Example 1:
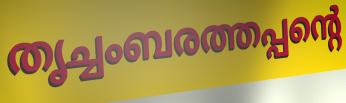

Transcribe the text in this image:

തൃച്ചംബരത്തപ്പന്റെ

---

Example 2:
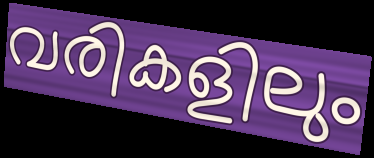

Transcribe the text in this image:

വരികളിലും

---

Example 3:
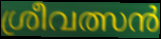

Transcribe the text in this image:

ശ്രീവത്സൻ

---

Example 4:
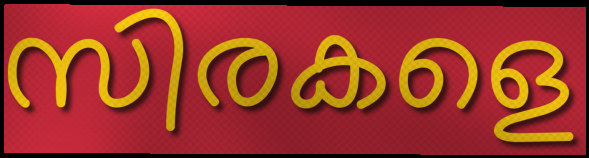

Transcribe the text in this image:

സിരകളെ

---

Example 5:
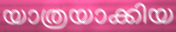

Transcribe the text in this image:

യാത്രയാക്കിയ